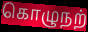
கொழுநற்